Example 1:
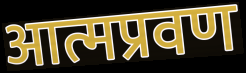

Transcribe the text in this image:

आत्मप्रवण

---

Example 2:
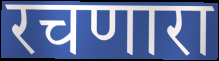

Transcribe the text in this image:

रचणारा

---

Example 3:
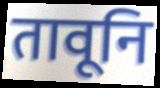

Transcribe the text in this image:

तावूनि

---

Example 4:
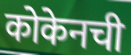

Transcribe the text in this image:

कोकेनची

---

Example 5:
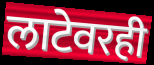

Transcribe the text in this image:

लाटेवरही